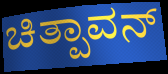
ಚಿತ್ಪಾವನ್